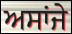
ਅਸਾਂਜੇ